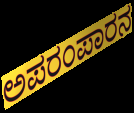
ಅಪರಂಪಾರನ